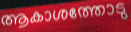
ആകാശത്തോടു